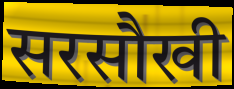
सरसौखी